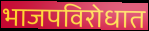
भाजपविरोधात